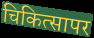
चिकित्सापर